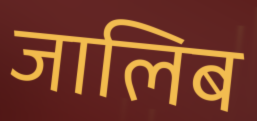
जालिब